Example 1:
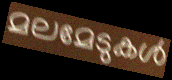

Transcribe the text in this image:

മലമേടുകൾ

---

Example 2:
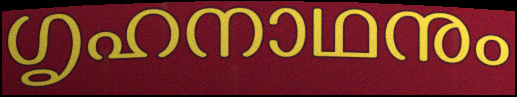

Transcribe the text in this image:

ഗൃഹനാഥനും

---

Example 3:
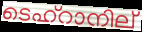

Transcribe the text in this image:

ടെഹ്റാനില്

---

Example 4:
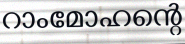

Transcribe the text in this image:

റാംമോഹന്റെ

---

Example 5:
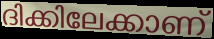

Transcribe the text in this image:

ദിക്കിലേക്കാണ്